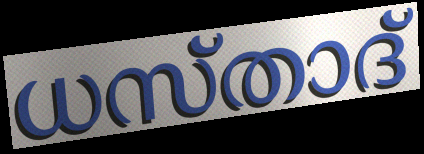
ധസ്താദ്